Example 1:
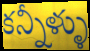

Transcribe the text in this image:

కన్నీళ్ళు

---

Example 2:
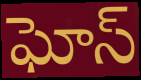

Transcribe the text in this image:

ఘోస్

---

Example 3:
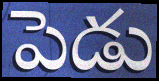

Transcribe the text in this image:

పెడు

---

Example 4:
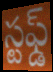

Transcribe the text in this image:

స్టఫ్డ్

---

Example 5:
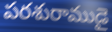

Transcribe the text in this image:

పరశురాముడై